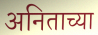
अनिताच्या